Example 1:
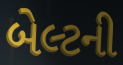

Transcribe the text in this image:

બેલ્ટની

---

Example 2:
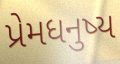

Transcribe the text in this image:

પ્રેમધનુષ્ય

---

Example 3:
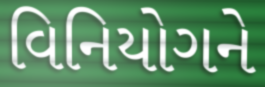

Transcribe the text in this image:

વિનિયોગને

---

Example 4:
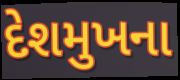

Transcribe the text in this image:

દેશમુખના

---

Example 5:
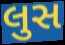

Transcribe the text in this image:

લુસ